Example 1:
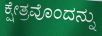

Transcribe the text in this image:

ಕ್ಷೇತ್ರವೊಂದನ್ನು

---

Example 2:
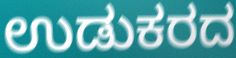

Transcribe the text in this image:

ಉಡುಕರದ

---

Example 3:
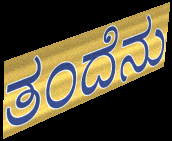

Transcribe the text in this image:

ತಂದೆನು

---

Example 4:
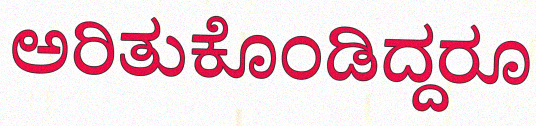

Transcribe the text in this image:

ಅರಿತುಕೊಂಡಿದ್ದರೂ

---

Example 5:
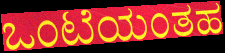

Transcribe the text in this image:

ಒಂಟೆಯಂತಹ